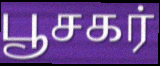
பூசகர்